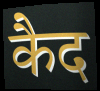
कैद